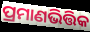
ପ୍ରମାଣଭିତ୍ତିକ